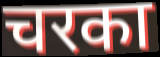
चरका